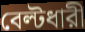
বেল্টধারী